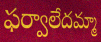
ఫర్వాలేదమ్మా